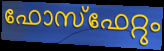
ഫോസ്ഫേറ്റും